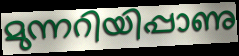
മുന്നറിയിപ്പാണു